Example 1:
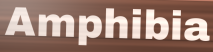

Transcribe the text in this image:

Amphibia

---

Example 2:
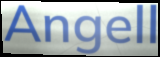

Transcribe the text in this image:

Angell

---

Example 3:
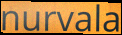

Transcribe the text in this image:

nurvala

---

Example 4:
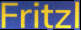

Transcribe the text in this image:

Fritzl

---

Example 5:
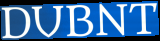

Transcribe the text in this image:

DUBNT